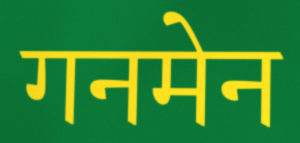
गनमेन